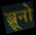
ब्रूनो